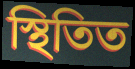
স্থিতিত